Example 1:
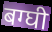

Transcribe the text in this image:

बग्घी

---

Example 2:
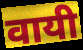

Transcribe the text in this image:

वायी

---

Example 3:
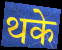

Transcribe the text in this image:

थके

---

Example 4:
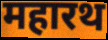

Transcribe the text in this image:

महारथ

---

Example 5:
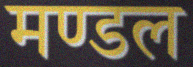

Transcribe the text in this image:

मण्डल